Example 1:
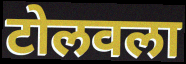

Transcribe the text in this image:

टोलवला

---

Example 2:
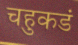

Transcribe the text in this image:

चहुकडं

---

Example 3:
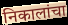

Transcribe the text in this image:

निकालांचा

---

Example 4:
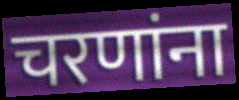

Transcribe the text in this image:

चरणांना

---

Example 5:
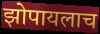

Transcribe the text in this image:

झोपायलाच